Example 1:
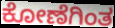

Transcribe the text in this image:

ಕೋಣೆಗಿಂತ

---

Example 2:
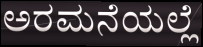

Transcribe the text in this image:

ಅರಮನೆಯಲ್ಲೆ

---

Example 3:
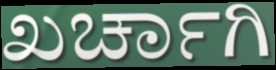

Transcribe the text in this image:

ಖರ್ಚಾಗಿ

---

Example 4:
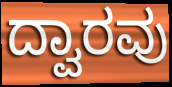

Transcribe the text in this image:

ದ್ವಾರವು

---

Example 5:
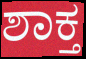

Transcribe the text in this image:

ಶಾಕ್ತ